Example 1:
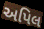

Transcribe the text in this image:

અપિલ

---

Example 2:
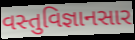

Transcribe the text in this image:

વસ્તુવિજ્ઞાનસાર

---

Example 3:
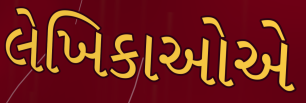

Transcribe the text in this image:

લેખિકાઓએ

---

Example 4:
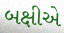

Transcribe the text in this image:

બક્ષીએ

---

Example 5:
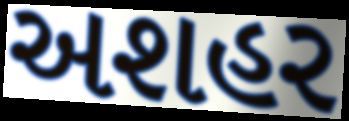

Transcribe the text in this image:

અશહર